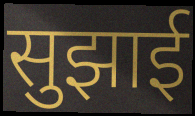
सुझाई